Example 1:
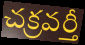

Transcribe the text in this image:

చక్రవర్తీ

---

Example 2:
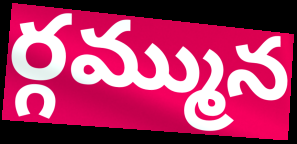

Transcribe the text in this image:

ర్గమ్మున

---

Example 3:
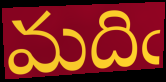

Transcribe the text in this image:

మదిఁ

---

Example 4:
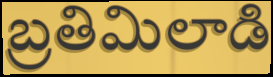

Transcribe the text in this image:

బ్రతిమిలాడి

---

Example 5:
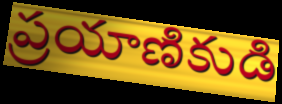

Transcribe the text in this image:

ప్రయాణికుడి